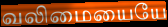
வலிமையையே